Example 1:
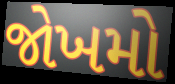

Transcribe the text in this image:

જોખમો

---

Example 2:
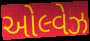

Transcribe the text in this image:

ઓલ્વેઝ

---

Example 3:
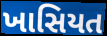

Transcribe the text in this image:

ખાસિયત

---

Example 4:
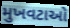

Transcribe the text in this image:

મુખવટાઓ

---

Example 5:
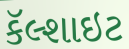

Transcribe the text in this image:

કૅલ્શાઇટ